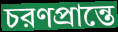
চরণপ্রান্তে